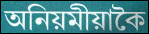
অনিয়মীয়াকৈ